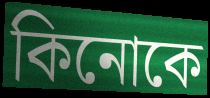
কিনোকে